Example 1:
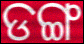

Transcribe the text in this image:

ଡଙ୍ଗ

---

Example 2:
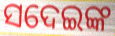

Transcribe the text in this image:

ସଦେଇଙ୍କ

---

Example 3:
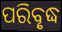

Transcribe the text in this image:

ପରିବୃଦ୍ଧ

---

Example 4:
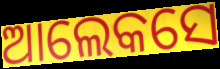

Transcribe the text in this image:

ଆଲେକସେ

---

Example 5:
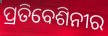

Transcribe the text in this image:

ପ୍ରତିବେଶିନୀର